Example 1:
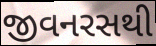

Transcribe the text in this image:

જીવનરસથી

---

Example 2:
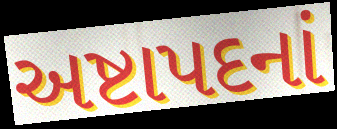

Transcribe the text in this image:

અષ્ટાપદનાં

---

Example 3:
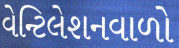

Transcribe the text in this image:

વેન્ટિલેશનવાળો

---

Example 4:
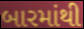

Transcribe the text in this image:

બારમાંથી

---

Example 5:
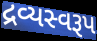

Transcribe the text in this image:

દ્રવ્યસ્વરૂપ